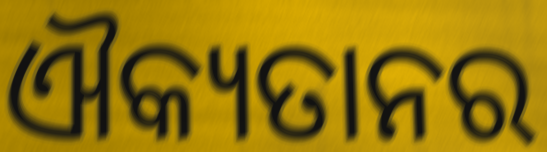
ଐକ୍ୟତାନର